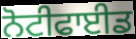
ਨੋਟੀਫਾਈਡ